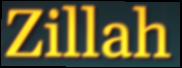
Zillah